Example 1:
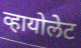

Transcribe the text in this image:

व्हायोलेट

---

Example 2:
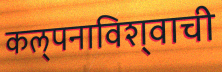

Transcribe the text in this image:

कल्पनाविश्वाची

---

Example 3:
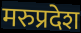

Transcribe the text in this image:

मरुप्रदेश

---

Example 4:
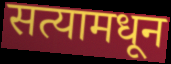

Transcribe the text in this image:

सत्यामधून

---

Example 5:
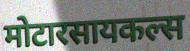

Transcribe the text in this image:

मोटारसायकल्स